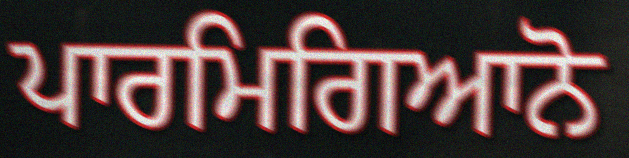
ਪਾਰਮਿਗਿਆਨੋ